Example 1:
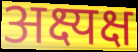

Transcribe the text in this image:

अक्ष्यक्ष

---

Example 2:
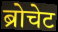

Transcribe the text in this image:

ब्रोचेट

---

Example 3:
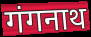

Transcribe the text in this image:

गंगनाथ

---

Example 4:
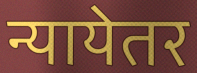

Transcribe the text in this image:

न्यायेतर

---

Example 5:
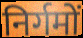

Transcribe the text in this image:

निर्गमों